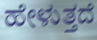
ಹೇಳುತ್ತದೆ